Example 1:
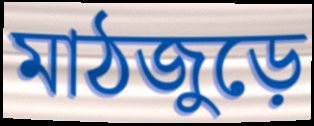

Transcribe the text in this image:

মাঠজুড়ে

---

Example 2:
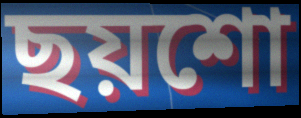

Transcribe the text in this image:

ছয়শো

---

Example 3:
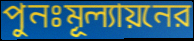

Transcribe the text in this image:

পুনঃমূল্যায়নের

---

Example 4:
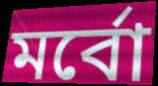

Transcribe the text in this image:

মর্বো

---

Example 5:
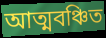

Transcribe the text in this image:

আত্মবঞ্চিত